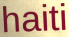
haiti